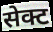
सेक्ट